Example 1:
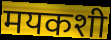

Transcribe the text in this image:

मयकशी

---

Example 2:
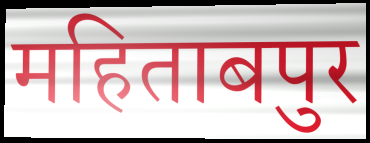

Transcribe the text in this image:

महिताबपुर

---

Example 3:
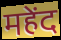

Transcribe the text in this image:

महेंद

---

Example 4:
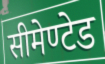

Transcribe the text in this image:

सीमेण्टेड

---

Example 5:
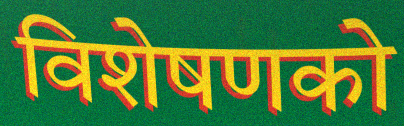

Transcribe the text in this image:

विशेषणको